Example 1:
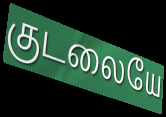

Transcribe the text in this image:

குடலையே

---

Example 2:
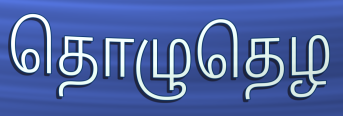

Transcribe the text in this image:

தொழுதெழ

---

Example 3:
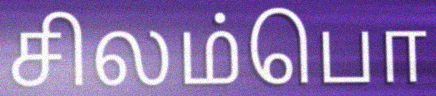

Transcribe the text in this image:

சிலம்பொ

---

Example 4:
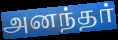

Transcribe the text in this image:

அனந்தர்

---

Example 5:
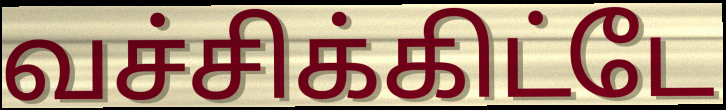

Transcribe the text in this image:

வச்சிக்கிட்டே